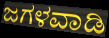
ಜಗಳವಾಡಿ